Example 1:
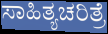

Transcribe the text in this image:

ಸಾಹಿತ್ಯಚರಿತ್ರೆ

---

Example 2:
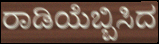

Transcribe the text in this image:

ರಾಡಿಯೆಬ್ಬಿಸಿದ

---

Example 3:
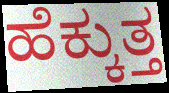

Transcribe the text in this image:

ಹೆಕ್ಕುತ್ತ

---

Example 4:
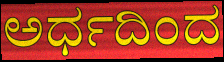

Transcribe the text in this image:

ಅರ್ಧದಿಂದ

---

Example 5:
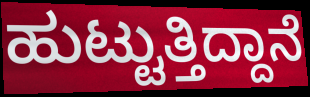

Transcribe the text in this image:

ಹುಟ್ಟುತ್ತಿದ್ದಾನೆ